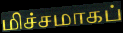
மிச்சமாகப்